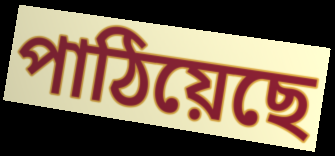
পাঠিয়েছে